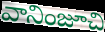
వానింజూచి